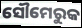
ସୌମେରୁକ